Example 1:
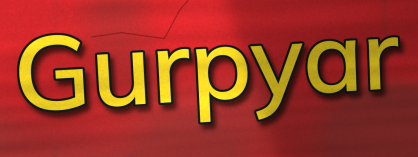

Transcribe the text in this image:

Gurpyar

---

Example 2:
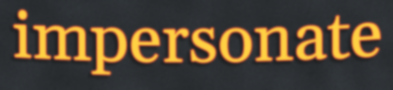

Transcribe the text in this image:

impersonate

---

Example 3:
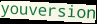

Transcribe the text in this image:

youversion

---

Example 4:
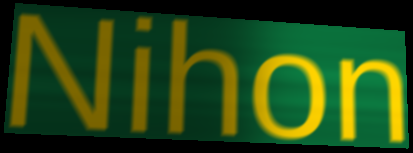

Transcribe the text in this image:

Nihon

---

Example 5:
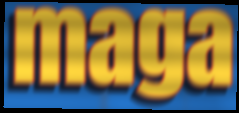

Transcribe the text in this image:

maga